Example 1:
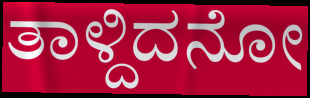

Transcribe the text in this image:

ತಾಳ್ದಿದನೋ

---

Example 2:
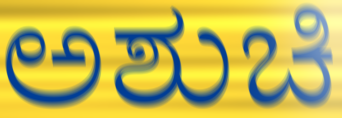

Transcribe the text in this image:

ಅಶುಚಿ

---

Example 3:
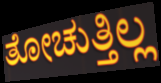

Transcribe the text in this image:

ತೋಚುತ್ತಿಲ್ಲ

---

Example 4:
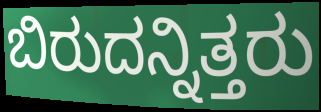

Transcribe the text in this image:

ಬಿರುದನ್ನಿತ್ತರು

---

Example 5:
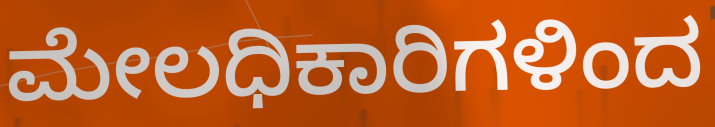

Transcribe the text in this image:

ಮೇಲಧಿಕಾರಿಗಳಿಂದ